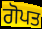
ਗੋਪਤ